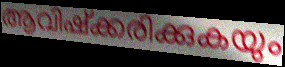
ആവിഷ്ക്കരിക്കുകയും